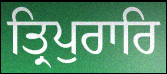
ਤ੍ਰਿਪੁਰਾਰਿ